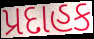
પ્રદાહક